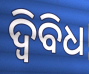
ଦ୍ୱିବିଧ